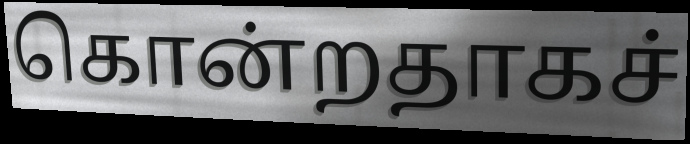
கொன்றதாகச்